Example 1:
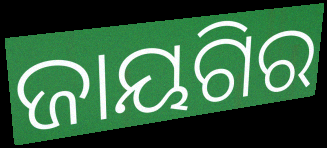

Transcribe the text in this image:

ଜାୟଗିର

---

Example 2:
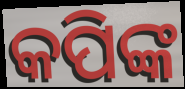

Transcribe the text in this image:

କପିଙ୍କ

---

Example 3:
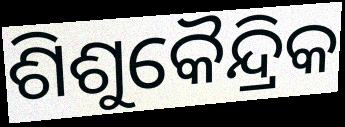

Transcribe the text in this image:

ଶିଶୁକୈନ୍ଦ୍ରିକ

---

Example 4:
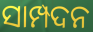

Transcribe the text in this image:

ସାମ୍ପଦନ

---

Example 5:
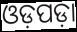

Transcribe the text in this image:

ଓଡ଼ପଡ଼ା